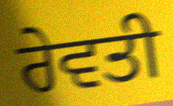
ਰੇਵਤੀ